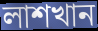
লাশখান